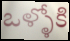
ఒళ్ళోకి